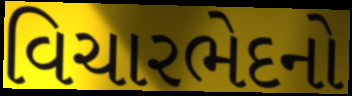
વિચારભેદનો